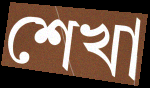
শেখা